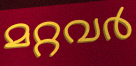
മറ്റവർ